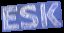
ESK